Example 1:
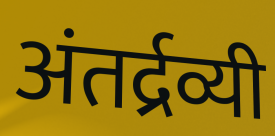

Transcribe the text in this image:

अंतर्द्रव्यी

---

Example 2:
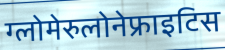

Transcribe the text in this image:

ग्लोमेरुलोनेफ्राइटिस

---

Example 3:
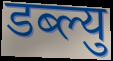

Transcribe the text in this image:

डब्ल्यु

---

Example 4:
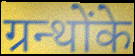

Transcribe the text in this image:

ग्रन्थोंके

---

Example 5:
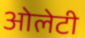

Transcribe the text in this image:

ओलेटी